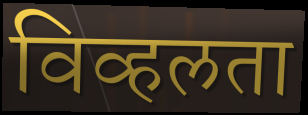
विव्हलता